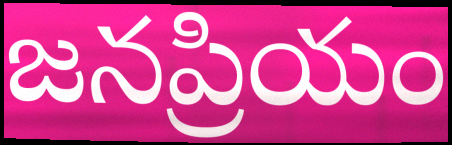
జనప్రియం